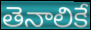
తెనాలికే